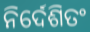
ନିର୍ଦେଶିତଂ